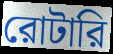
রোটারি